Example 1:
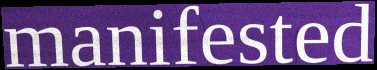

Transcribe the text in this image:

manifested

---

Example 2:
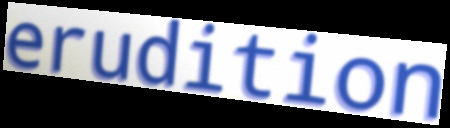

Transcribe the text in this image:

erudition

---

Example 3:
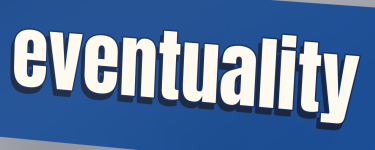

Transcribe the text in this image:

eventuality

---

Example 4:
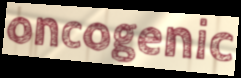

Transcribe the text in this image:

oncogenic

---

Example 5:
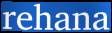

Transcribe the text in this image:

rehana